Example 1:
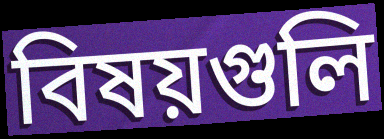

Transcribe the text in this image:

বিষয়গুলি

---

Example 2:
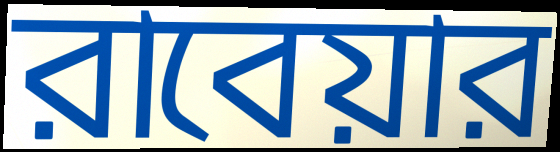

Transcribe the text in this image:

রাবেয়ার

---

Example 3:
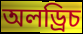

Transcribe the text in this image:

অলড্রিচ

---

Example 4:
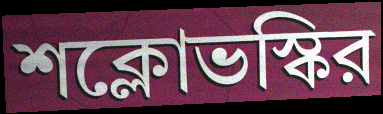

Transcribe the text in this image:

শক্লোভস্কির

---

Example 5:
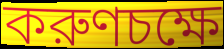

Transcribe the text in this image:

করুণচক্ষে